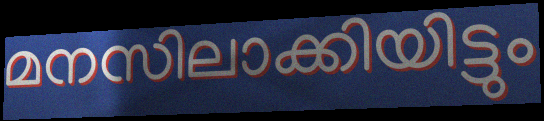
മനസിലാക്കിയിട്ടും